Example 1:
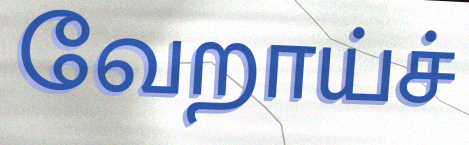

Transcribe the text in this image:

வேறாய்ச்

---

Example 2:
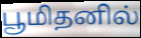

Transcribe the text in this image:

பூமிதனில்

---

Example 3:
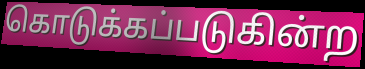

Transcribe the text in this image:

கொடுக்கப்படுகின்ற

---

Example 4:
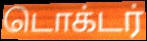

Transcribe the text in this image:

டொக்டர்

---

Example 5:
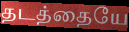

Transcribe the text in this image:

தடத்தையே